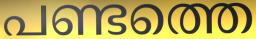
പണ്ടത്തെ